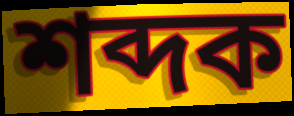
শব্দক